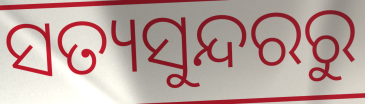
ସତ୍ୟସୁନ୍ଦରରୁ